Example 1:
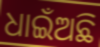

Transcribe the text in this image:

ଧାଇଁଅଛି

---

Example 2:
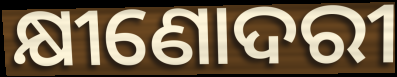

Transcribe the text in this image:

କ୍ଷୀଣୋଦରୀ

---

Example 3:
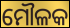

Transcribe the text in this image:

ମୌଳକ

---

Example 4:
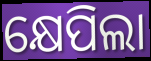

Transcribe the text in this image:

କ୍ଷେପିଲା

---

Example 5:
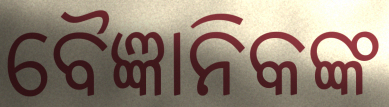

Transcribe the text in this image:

ବୈଜ୍ଞାନିକଙ୍କ